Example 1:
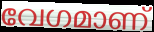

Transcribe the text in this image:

വേഗമാണ്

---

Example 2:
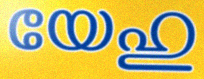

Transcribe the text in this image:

യേഹു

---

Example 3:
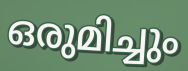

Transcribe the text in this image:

ഒരുമിച്ചും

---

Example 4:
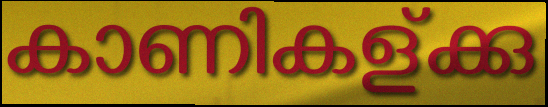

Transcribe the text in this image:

കാണികള്ക്കു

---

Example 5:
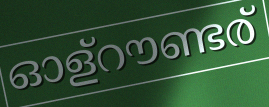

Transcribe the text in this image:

ഓള്റൗണ്ടര്